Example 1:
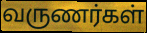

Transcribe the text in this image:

வருணர்கள்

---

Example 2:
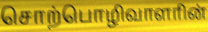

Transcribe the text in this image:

சொற்பொழிவாளரின்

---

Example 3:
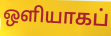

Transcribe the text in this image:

ஒளியாகப்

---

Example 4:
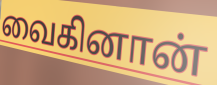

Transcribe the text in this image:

வைகினான்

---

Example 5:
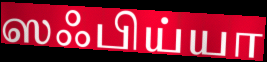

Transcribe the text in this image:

ஸஃபிய்யா